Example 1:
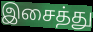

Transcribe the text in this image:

இசைத்து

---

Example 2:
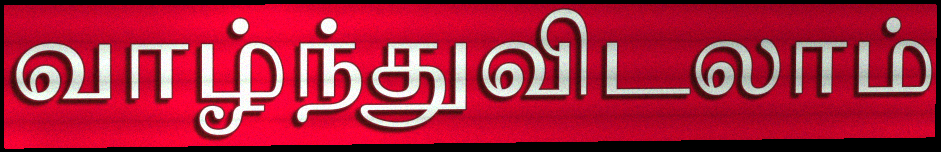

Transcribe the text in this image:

வாழ்ந்துவிடலாம்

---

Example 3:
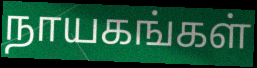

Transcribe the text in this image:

நாயகங்கள்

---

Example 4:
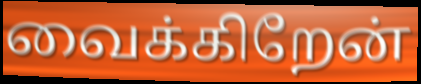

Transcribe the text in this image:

வைக்கிறேன்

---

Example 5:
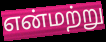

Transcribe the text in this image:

என்மற்று